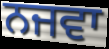
ਨਜਵਾ